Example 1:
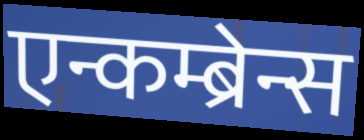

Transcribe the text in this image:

एन्कम्ब्रेन्स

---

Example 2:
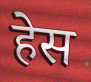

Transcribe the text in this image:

हेस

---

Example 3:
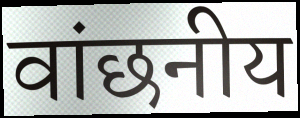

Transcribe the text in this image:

वांछनीय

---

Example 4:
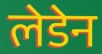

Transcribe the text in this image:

लेडेन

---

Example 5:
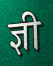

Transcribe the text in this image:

ज्ञी